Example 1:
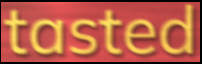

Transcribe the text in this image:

tasted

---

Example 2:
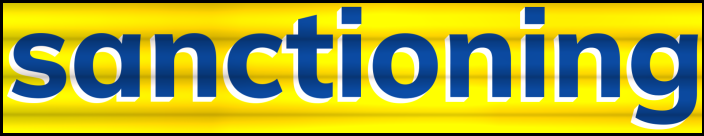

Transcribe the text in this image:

sanctioning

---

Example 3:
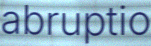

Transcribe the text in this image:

abruptio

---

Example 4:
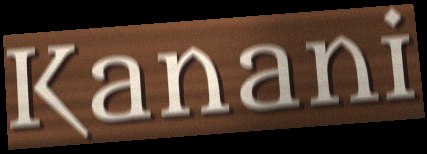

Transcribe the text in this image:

Kanani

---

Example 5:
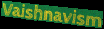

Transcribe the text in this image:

Vaishnavism